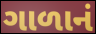
ગાળાનં